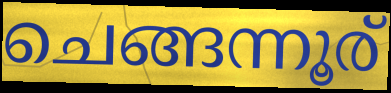
ചെങ്ങന്നൂര്